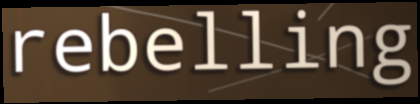
rebelling